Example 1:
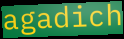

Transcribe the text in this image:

agadich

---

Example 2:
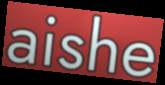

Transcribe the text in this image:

aishe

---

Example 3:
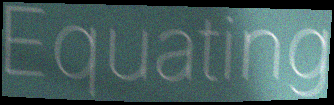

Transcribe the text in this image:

Equating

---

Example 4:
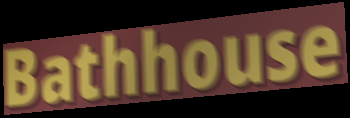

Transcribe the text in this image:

Bathhouse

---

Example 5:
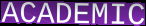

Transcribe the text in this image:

ACADEMIC